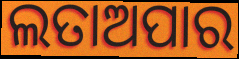
ଲତାଅପାର